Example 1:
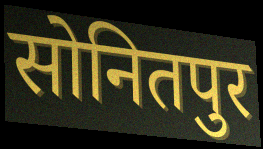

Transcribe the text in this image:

सोनितपुर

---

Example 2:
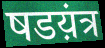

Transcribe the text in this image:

षडय़ंत्र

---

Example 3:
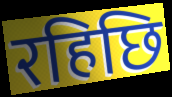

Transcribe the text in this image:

रहिछि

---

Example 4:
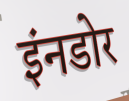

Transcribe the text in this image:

इंनडोर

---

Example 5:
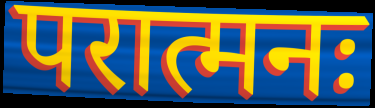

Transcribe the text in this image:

परात्मनः